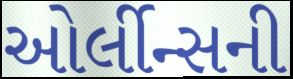
ઓર્લીન્સની